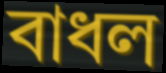
বাধল